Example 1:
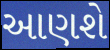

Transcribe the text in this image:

આણશે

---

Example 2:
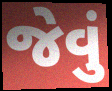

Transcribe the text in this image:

જેવું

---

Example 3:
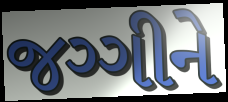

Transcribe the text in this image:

જગ્ગીને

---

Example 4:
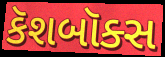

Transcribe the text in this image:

કૅશબૉક્સ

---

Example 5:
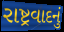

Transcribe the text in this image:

રાષ્ટ્રવાદનું